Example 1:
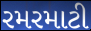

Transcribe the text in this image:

રમરમાટી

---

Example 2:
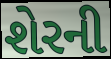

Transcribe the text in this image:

શેરની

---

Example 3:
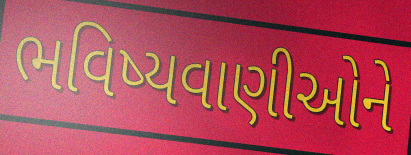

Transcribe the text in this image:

ભવિષ્યવાણીઓને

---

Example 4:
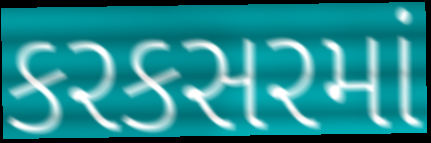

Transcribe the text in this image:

કરકસરમાં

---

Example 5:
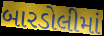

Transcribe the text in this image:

બારડોલીમાં